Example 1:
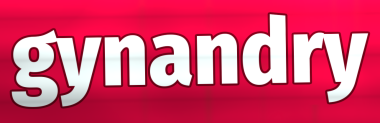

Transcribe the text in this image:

gynandry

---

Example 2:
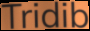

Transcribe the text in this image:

Tridib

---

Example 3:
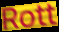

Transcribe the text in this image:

Rott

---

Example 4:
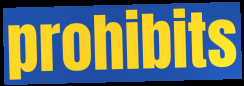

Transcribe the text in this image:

prohibits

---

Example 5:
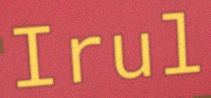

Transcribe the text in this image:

Irul